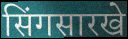
सिंगसारखे